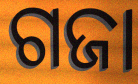
ଗଜା